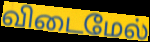
விடைமேல்